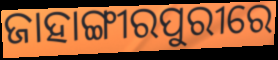
ଜାହାଙ୍ଗୀରପୁରୀରେ